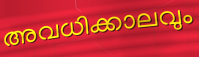
അവധിക്കാലവും